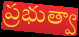
ప్రభుత్వా